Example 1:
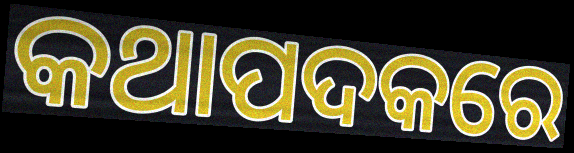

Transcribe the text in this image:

କଥାପଦକରେ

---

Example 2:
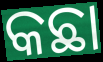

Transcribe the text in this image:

କଛା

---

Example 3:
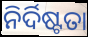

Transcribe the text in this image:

ନିର୍ଦିଷ୍ଟତା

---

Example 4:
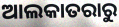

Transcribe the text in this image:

ଆଲକାତରାରୁ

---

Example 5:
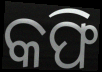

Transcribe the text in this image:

କଫି